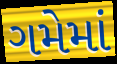
ગમેમાં